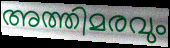
അത്തിമരവും